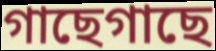
গাছেগাছে